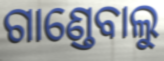
ଗାଣ୍ଡେବାଲୁ